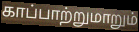
காப்பாற்றுமாறும்